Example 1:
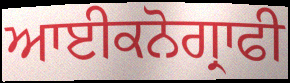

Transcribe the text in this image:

ਆਈਕਨੋਗ੍ਰਾਫੀ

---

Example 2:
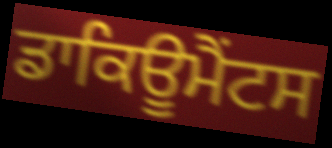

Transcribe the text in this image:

ਡਾਕਿਊਮੈਂਟਸ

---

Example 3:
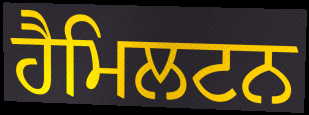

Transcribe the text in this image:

ਹੈਮਿਲਟਨ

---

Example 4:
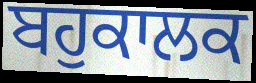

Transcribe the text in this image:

ਬਹੁਕਾਲਕ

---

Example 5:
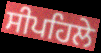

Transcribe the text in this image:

ਸੀਪਹਿਲੇ